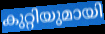
കുറ്റിയുമായി